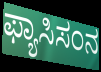
ಫ್ಯಾಸಿಸಂನ